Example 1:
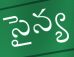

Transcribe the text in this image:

సైన్య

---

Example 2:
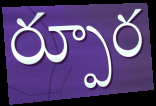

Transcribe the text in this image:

ర్పూర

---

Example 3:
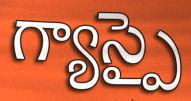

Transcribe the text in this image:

గ్యాస్పై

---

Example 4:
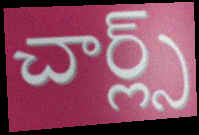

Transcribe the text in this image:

చార్ల్స్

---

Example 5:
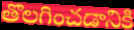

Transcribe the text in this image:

తొలగించడానికి